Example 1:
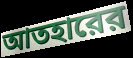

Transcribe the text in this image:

আতহারের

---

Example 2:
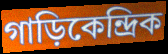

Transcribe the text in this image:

গাড়িকেন্দ্রিক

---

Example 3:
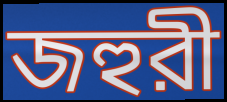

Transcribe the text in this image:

জহুরী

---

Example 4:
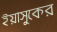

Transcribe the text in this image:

ইয়াসুকের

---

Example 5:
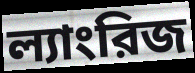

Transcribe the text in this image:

ল্যাংরিজ